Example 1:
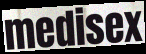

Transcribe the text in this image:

medisex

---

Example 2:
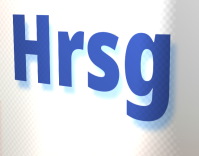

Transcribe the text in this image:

Hrsg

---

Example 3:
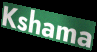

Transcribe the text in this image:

Kshama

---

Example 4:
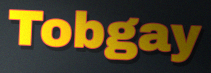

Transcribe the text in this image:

Tobgay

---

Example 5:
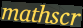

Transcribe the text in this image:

mathscr